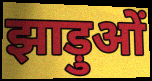
झाड़ुओं